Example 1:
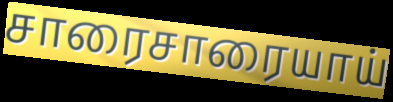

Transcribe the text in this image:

சாரைசாரையாய்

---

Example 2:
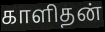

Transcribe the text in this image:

காளிதன்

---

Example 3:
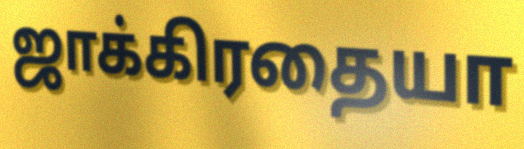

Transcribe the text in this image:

ஜாக்கிரதையா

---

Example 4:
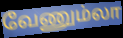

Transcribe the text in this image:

வேணும்லா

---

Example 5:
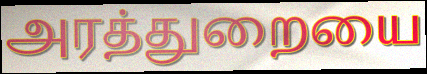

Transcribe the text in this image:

அரத்துறையை